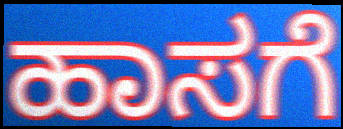
ಹಾಸಗೆ